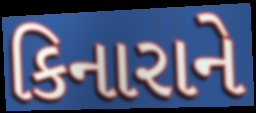
કિનારાને